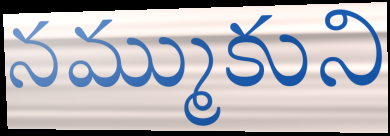
నమ్ముకుని